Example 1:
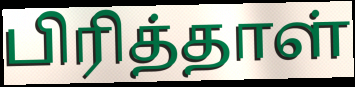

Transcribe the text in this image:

பிரித்தாள்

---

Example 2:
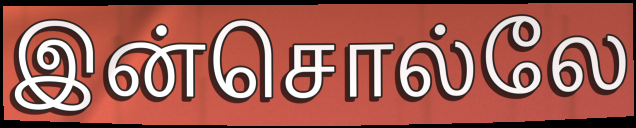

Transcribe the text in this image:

இன்சொல்லே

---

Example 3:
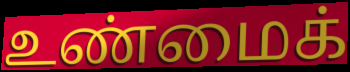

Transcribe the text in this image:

உண்மைக்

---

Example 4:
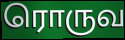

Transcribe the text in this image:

ரொருவ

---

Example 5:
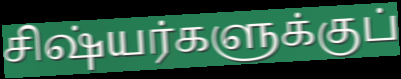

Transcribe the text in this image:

சிஷ்யர்களுக்குப்